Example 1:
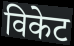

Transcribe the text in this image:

विकेट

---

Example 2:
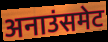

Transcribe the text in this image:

अनाउंसमेट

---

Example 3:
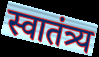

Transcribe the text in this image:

स्वातंत्र्य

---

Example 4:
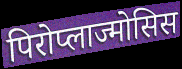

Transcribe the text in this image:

पिरोप्लाज्मोसिस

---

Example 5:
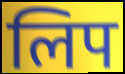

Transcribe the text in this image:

लिप